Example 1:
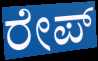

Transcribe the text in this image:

ರೇಪ್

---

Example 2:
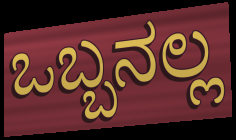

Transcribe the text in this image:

ಒಬ್ಬನಲ್ಲ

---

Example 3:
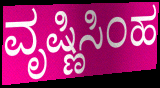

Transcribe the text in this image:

ವೃಷ್ಣಿಸಿಂಹ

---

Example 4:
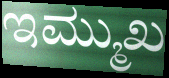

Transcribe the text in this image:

ಇಮ್ಮುಖ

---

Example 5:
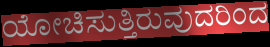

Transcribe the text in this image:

ಯೋಚಿಸುತ್ತಿರುವುದರಿಂದ